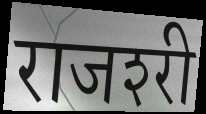
राजश्री